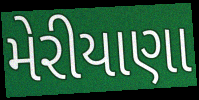
મેરીયાણા